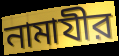
নামাযীর